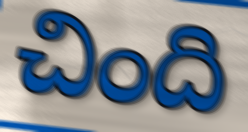
చింది